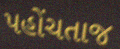
પહોંચતાજ